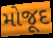
મોજૂદ